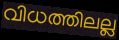
വിധത്തിലല്ല